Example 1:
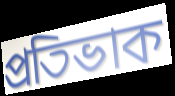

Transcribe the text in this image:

প্ৰতিভাক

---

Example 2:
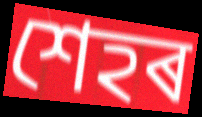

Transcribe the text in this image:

শেহৰ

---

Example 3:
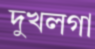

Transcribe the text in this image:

দুখলগা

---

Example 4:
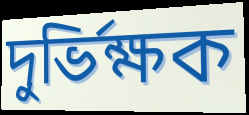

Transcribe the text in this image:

দুৰ্ভিক্ষক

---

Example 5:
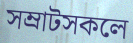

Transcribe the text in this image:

সম্ৰাটসকলে